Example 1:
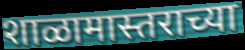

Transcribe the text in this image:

शाळामास्तराच्या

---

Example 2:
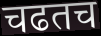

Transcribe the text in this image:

चढतच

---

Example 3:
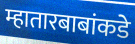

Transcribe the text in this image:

म्हातारबाबांकडे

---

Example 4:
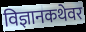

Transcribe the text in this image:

विज्ञानकथेवर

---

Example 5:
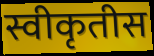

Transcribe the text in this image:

स्वीकृतीस